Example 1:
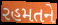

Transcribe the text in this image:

રહમતને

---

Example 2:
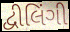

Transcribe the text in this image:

દ્વીલિંગી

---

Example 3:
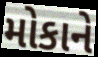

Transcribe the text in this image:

મોકાને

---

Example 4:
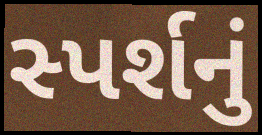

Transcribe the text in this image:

સ્પર્શનું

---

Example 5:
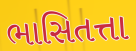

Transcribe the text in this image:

ભાસિતત્તા